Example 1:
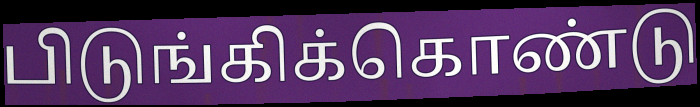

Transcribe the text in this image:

பிடுங்கிக்கொண்டு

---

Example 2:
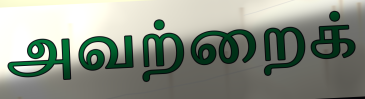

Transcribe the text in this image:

அவற்றைக்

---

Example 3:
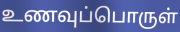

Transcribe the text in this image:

உணவுப்பொருள்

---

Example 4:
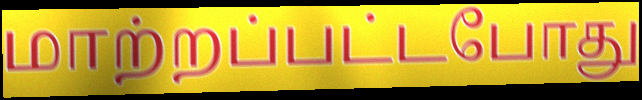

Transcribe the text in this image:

மாற்றப்பட்டபோது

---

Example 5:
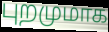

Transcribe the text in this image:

புறமுமாக